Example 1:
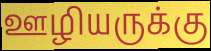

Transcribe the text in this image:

ஊழியருக்கு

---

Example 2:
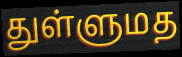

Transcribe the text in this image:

துள்ளுமத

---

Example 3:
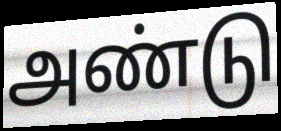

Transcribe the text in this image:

அண்டு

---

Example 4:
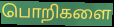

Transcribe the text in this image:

பொறிகளை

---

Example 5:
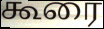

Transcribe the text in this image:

கூரை